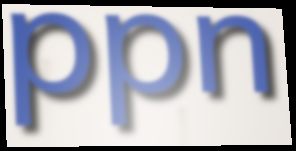
ppn